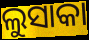
ଲୁସାକା